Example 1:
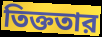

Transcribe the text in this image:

তিক্ততার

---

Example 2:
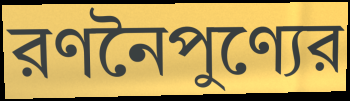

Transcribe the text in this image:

রণনৈপুণ্যের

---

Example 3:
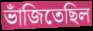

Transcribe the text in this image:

ভাঁজিতেছিল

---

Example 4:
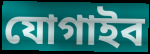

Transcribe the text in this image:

যোগাইব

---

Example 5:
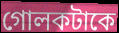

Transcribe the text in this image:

গোলকটাকে